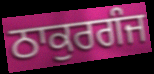
ਠਾਕੁਰਗੰਜ